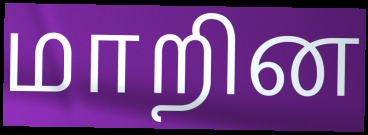
மாறின